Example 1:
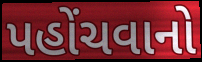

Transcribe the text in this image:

પહોંચવાનો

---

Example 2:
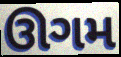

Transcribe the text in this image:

ઊગમ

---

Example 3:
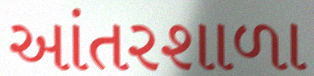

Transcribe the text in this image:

આંતરશાળા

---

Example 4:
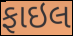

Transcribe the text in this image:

ફાઇલ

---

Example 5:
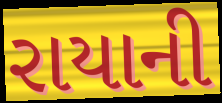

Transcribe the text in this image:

રાયાની